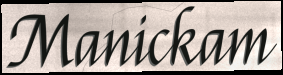
Manickam